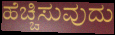
ಹೆಚ್ಚಿಸುವುದು